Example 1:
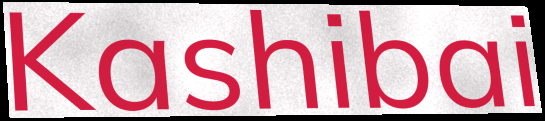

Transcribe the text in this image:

Kashibai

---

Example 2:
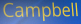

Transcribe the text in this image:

Campbell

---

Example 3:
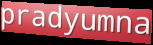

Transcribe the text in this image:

pradyumna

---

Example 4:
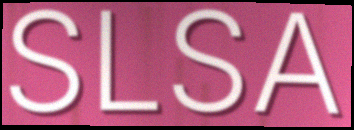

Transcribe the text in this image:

SLSA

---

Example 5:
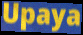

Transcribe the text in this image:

Upaya